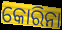
କୋରିନା